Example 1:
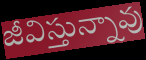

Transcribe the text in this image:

జీవిస్తున్నావు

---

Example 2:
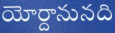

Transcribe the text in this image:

యోర్దానునది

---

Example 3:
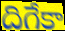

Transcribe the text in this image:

దిగేకా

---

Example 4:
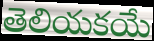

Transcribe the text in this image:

తెలియకయే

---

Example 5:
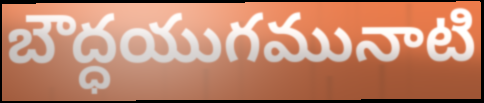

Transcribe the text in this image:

బౌద్ధయుగమునాటి